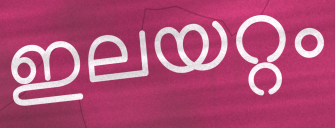
ഇലയറ്റം